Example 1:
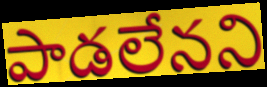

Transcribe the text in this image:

పాడలేనని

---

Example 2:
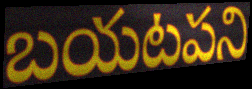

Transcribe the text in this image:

బయటపని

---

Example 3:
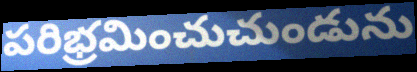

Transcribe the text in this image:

పరిభ్రమించుచుండును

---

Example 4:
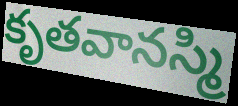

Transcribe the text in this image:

కృతవానస్మి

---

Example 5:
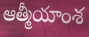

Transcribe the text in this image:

ఆత్మీయాంశ